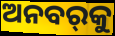
ଅନବର୍‌କୁ